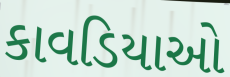
કાવડિયાઓ